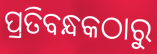
ପ୍ରତିବନ୍ଧକଠାରୁ